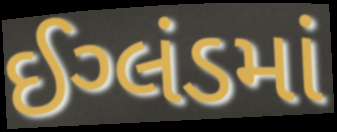
ઈગ્લંડમાં